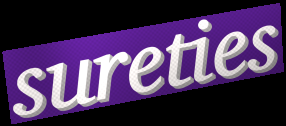
sureties